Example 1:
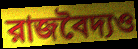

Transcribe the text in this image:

রাজবৈদ্যও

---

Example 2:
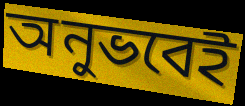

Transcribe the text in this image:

অনুভবেই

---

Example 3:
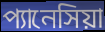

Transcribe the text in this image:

প্যানেসিয়া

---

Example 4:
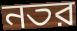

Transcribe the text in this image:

নতর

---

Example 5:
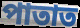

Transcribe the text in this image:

পাতাত